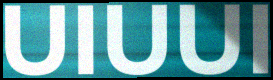
UIUUI